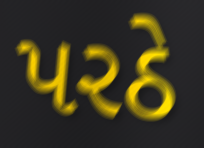
પરઠે